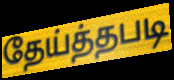
தேய்த்தபடி